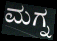
ಮಗ್ನ